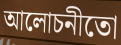
আলোচনীতো